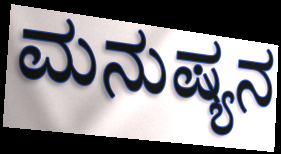
ಮನುಷ್ಯನ